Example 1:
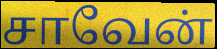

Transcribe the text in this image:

சாவேன்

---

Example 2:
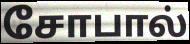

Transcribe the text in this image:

சோபால்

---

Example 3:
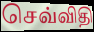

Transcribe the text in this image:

செவ்விதி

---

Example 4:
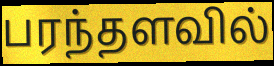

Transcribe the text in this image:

பரந்தளவில்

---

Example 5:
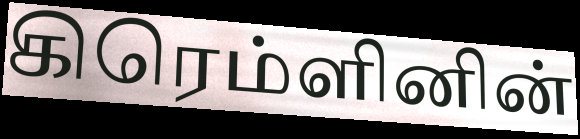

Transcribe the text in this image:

கிரெம்ளினின்